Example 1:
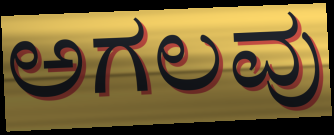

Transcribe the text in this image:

ಅಗಲವು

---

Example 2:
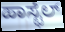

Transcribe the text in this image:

ಹಾಸ್ಟೆಲ್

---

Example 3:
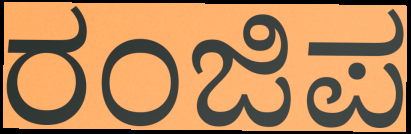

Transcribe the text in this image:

ರಂಜಿಪ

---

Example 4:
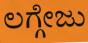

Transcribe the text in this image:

ಲಗ್ಗೇಜು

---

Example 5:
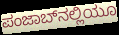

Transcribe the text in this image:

ಪಂಜಾಬ್‌ನಲ್ಲಿಯೂ